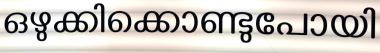
ഒഴുക്കിക്കൊണ്ടുപോയി